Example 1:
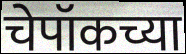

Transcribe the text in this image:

चेपॉकच्या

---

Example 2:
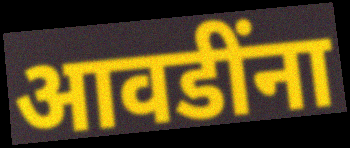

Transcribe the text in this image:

आवडींना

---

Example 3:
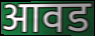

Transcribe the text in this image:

आवड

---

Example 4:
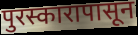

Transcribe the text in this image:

पुरस्कारापासून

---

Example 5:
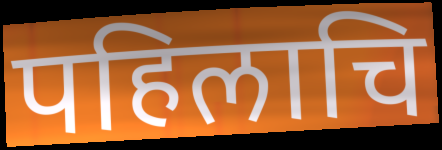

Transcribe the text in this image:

पहिलाचि